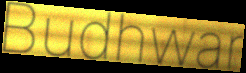
Budhwar